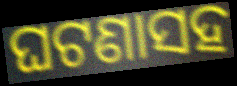
ଘଟଣାସହ